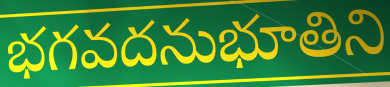
భగవదనుభూతిని